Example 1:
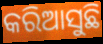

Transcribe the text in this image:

କରିଆସୁଛି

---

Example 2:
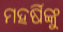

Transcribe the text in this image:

ମହର୍ଷିଙ୍କୁ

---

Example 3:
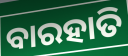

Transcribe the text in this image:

ବାରହାତି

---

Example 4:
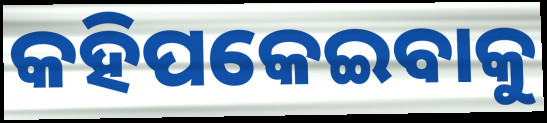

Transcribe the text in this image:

କହିପକେଇବାକୁ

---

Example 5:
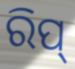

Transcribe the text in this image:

ରିପ୍